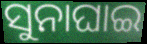
ସୁନାଘାଇ